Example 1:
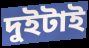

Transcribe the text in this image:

দুইটাই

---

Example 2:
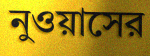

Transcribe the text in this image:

নুওয়াসের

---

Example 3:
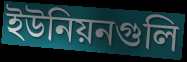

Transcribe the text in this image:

ইউনিয়নগুলি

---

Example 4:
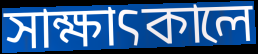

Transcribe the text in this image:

সাক্ষাৎকালে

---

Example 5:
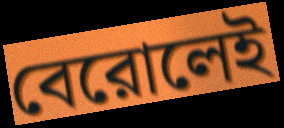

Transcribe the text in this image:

বেরোলেই